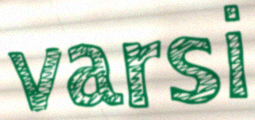
varsi